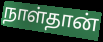
நாள்தான்